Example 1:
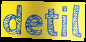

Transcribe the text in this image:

detil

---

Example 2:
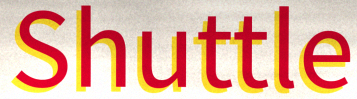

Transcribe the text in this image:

Shuttle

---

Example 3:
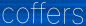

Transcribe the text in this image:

coffers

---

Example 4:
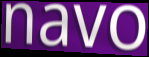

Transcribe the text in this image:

navo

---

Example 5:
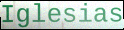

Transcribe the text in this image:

Iglesias